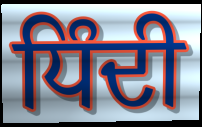
ਧਿੰਦੀ